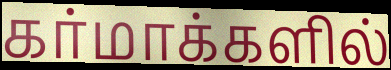
கர்மாக்களில்